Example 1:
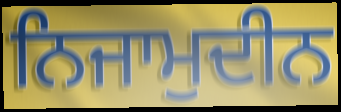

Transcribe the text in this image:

ਨਿਜਾਮੁਦੀਨ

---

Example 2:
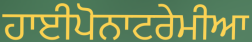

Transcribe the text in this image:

ਹਾਈਪੋਨਾਟਰੇਮੀਆ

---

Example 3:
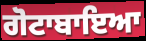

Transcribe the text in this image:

ਗੋਟਾਬਾਇਆ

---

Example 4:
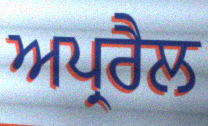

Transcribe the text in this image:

ਅਪ੍ਰਰੈਲ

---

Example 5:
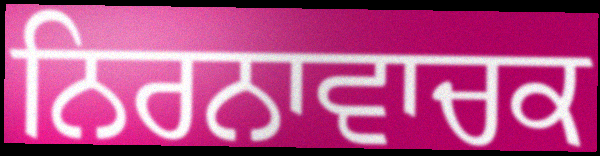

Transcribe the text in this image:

ਨਿਰਨਾਵਾਚਕ